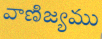
వాణిజ్యము